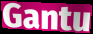
Gantu